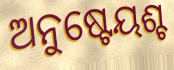
ଅନୁଷ୍ଟେୟଶ୍ଚ